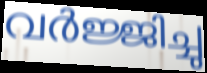
വർജ്ജിച്ചു